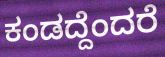
ಕಂಡದ್ದೆಂದರೆ